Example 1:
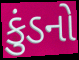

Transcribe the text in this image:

કુંડનો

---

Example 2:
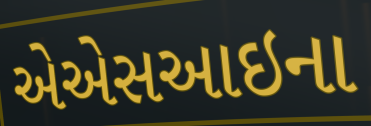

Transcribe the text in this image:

એએસઆઇના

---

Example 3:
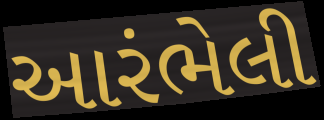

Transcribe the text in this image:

આરંભેલી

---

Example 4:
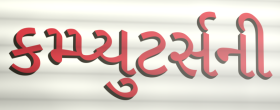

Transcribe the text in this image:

કમ્પ્યુટર્સની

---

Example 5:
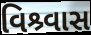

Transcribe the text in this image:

વિશ્ર્વાસ